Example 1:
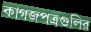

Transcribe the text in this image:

কাগজপত্রগুলির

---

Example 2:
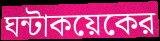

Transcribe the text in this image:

ঘন্টাকয়েকের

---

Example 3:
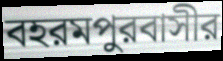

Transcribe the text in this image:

বহরমপুরবাসীর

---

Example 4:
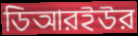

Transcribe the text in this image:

ডিআরইউর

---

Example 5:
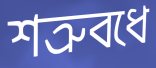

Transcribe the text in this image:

শত্রুবধে